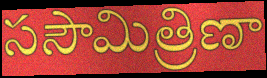
ససౌమిత్రిణా